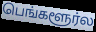
பெங்களூர்ல